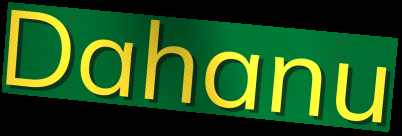
Dahanu